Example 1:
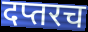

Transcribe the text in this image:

दप्तरच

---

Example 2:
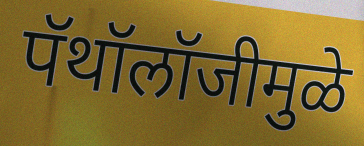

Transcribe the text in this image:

पॅथॉलॉजीमुळे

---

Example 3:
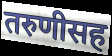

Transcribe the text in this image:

तरुणीसह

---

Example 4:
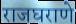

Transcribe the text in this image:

राजघराणे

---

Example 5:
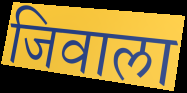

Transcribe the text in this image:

जिवाला